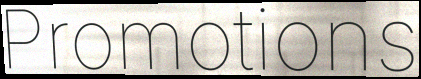
Promotions